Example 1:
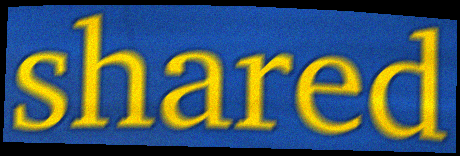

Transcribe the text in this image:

shared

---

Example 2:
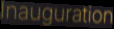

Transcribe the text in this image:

Inauguration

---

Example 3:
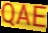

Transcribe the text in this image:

QAE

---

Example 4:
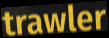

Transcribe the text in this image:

trawler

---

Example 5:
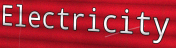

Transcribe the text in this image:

Electricity